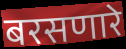
बरसणारे